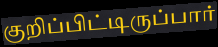
குறிப்பிட்டிருப்பார்